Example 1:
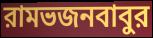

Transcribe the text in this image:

রামভজনবাবুর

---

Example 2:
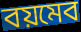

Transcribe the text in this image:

বয়মেব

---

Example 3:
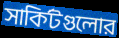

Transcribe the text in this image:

সার্কিটগুলোর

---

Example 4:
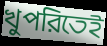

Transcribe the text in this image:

খুপরিতেই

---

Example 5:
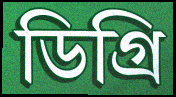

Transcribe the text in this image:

ডিগ্রি